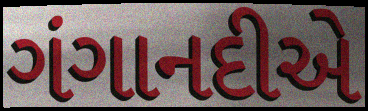
ગંગાનદીએ